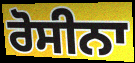
ਰੋਸੀਨਾ